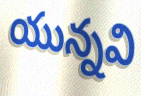
యున్నవి